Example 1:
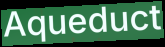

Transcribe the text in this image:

Aqueduct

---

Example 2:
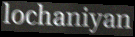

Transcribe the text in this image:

lochaniyan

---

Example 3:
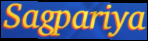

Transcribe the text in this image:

Sagpariya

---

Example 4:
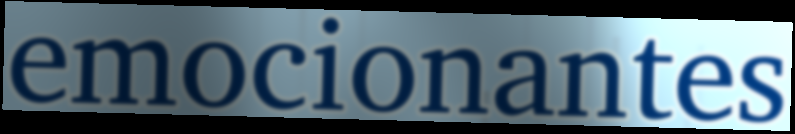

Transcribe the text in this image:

emocionantes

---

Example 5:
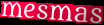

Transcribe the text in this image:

mesmas